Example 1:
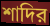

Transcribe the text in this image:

শাদির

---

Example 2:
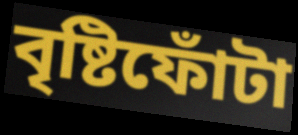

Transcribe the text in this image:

বৃষ্টিফোঁটা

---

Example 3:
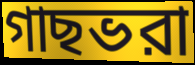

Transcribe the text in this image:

গাছভরা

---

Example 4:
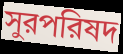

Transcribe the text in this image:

সুরপরিষদ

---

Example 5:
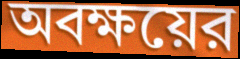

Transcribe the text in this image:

অবক্ষয়ের